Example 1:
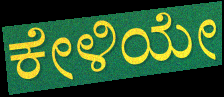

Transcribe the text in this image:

ಕೇಳಿಯೇ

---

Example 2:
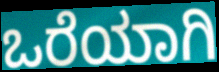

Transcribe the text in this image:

ಒರೆಯಾಗಿ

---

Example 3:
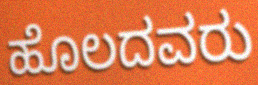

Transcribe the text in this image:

ಹೊಲದವರು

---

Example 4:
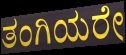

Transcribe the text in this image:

ತಂಗಿಯರೇ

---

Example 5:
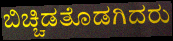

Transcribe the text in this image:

ಬಿಚ್ಚಿಡತೊಡಗಿದರು